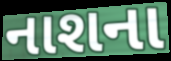
નાશના